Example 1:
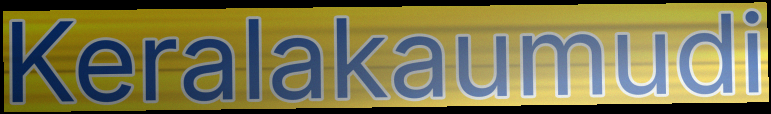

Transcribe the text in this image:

Keralakaumudi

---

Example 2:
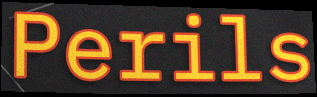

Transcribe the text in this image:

Perils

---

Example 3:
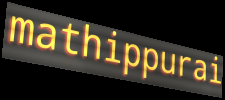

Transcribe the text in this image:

mathippurai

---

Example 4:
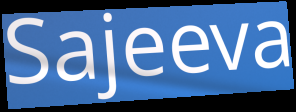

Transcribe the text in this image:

Sajeeva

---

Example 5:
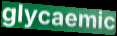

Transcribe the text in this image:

glycaemic